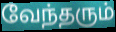
வேந்தரும்